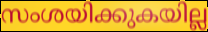
സംശയിക്കുകയില്ല